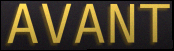
AVANT